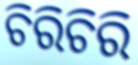
ଚିରିଚିରି